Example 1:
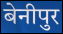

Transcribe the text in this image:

बेनीपुर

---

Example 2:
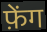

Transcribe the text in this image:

फ़ेंग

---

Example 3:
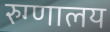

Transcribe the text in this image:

रुग्णालय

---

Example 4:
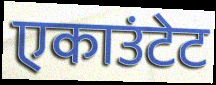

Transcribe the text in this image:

एकाउंटेट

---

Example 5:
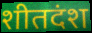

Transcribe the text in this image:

शीतदंश